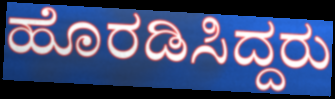
ಹೊರಡಿಸಿದ್ದರು